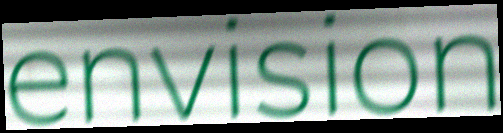
envision